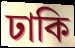
ঢাকি